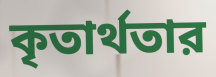
কৃতার্থতার